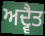
ਅਦ੍ਵੈਤ